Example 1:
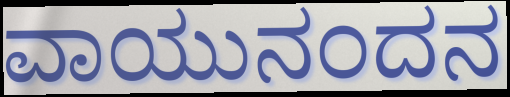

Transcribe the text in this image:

ವಾಯುನಂದನ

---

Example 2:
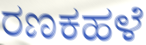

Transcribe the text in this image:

ರಣಕಹಳೆ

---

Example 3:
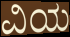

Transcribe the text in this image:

ವಿಯ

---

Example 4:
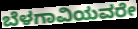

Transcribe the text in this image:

ಬೆಳಗಾವಿಯವರೇ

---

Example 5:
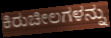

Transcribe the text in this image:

ಕಿರುಚೀಲಗಳನ್ನು